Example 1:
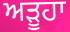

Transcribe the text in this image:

ਅੜੂਹਾ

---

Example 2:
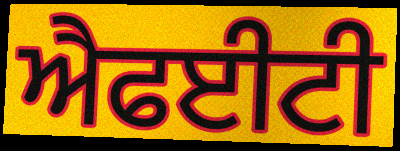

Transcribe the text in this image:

ਐਫਈਟੀ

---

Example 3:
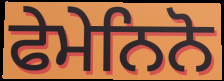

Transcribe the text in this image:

ਫੇਮੇਨਿਨੋ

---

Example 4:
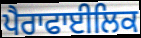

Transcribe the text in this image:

ਪੈਰਾਫਾਈਲਿਕ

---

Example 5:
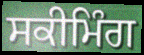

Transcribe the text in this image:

ਸਕੀਮਿੰਗ